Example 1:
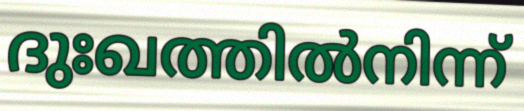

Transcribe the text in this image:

ദുഃഖത്തിൽനിന്ന്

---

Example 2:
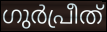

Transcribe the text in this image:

ഗുർപ്രീത്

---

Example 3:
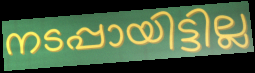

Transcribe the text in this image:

നടപ്പായിട്ടില്ല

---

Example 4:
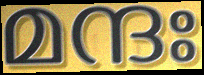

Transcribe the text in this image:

മന്ദഃ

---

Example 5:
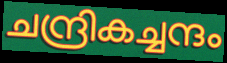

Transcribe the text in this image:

ചന്ദ്രികച്ചന്ദം